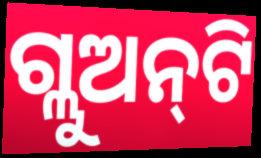
ଗ୍ଲୁଅନ୍‍ଟି